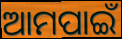
ଆମପାଇଁ